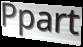
Ppart